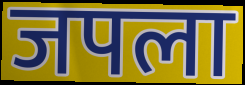
जपला